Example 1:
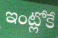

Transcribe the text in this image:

ఇంట్లోకే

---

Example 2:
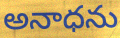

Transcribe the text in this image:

అనాధను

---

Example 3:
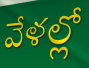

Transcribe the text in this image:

వేళల్లో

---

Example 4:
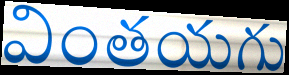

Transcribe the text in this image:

వింతయగు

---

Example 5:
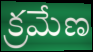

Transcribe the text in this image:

క్రమేణ